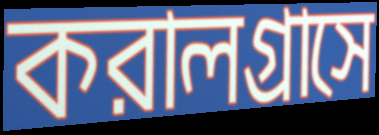
করালগ্রাসে